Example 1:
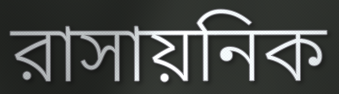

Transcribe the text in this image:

রাসায়নিক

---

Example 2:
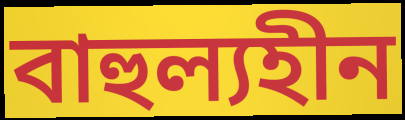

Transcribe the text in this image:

বাহুল্যহীন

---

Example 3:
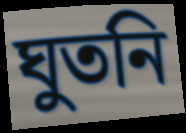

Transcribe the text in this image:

ঘুতনি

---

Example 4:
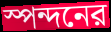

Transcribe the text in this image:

স্পন্দনের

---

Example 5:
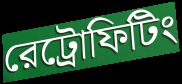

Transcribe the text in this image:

রেট্রোফিটিং